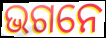
ଭଗନେ